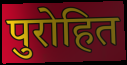
पुरोहित